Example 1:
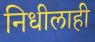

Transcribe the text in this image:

निधीलाही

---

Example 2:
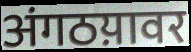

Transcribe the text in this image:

अंगठय़ावर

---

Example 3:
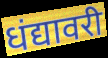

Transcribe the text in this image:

धंद्यावरी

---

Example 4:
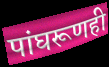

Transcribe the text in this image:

पांघरूणही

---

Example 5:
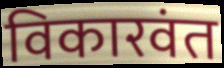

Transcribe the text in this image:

विकारवंत